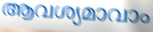
ആവശ്യമാവാം